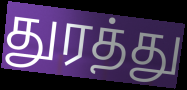
துரத்து